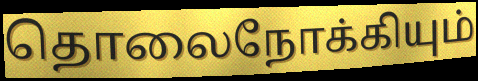
தொலைநோக்கியும்